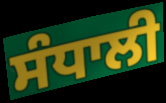
ਸੰਧਾਲੀ